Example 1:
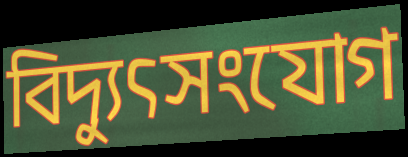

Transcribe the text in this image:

বিদ্যুৎসংযোগ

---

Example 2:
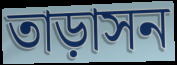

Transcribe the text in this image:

তাড়াসন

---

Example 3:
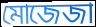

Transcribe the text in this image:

মোজেজা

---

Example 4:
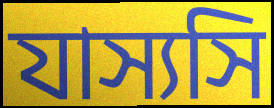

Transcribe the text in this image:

যাস্যসি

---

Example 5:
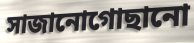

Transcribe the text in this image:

সাজানোগোছানো